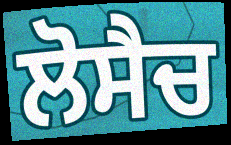
ਲੋਸੈਚ